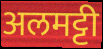
अलमट्टी